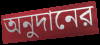
অনুদানের